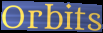
Orbits